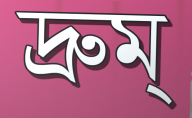
দ্রুম্